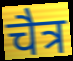
चैत्र